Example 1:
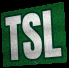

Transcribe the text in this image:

TSL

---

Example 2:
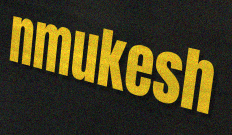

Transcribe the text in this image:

nmukesh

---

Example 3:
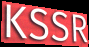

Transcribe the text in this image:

KSSR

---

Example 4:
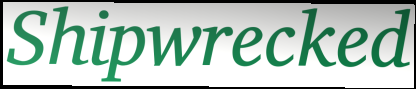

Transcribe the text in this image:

Shipwrecked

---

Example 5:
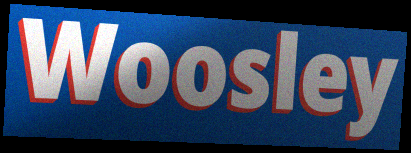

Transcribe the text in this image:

Woosley